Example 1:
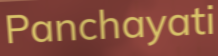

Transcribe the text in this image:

Panchayati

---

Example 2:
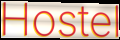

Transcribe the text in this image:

Hostel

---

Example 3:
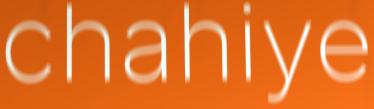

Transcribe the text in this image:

chahiye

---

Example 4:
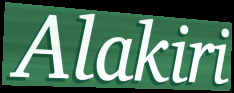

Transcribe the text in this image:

Alakiri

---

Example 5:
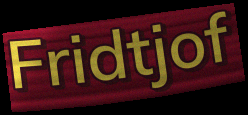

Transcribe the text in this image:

Fridtjof